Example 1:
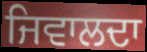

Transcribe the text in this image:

ਜਿਵਾਲਦਾ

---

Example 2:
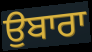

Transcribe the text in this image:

ਉਬਾਰਾ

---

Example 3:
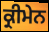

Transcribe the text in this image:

ਕ੍ਰੀਮੇਨ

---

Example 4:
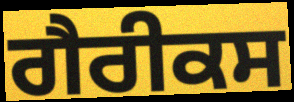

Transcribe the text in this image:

ਗੈਰੀਕਸ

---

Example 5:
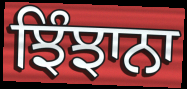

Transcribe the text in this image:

ਝਿੰਝਾਨਾ